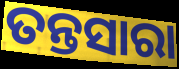
ତନ୍ତସାରା